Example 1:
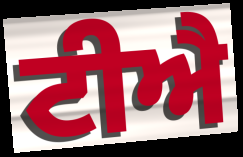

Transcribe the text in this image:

ਟੀਐ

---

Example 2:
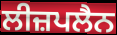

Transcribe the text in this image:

ਲੀਜ਼ਪਲੈਨ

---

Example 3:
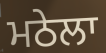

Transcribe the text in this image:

ਮਠੇਲਾ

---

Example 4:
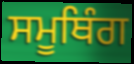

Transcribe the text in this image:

ਸਮੂਥਿੰਗ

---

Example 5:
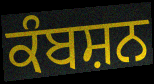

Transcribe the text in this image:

ਕੰਬਸ਼ਨ